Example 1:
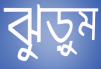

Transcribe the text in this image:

ঝুড়ুম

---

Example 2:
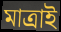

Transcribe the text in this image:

মাত্রাই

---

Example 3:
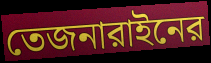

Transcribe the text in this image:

তেজনারাইনের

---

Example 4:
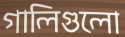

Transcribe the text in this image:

গালিগুলো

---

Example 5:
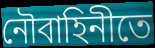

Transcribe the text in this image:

নৌবাহিনীতে